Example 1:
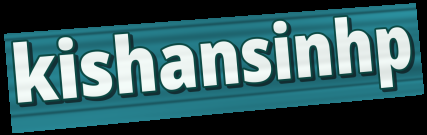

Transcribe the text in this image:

kishansinhp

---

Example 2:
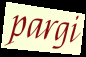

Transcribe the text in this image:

pargi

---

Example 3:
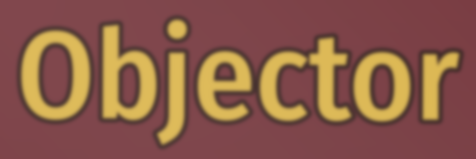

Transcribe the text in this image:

Objector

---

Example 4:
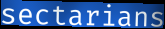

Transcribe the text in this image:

sectarians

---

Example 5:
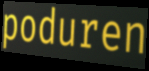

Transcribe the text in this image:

poduren